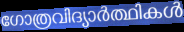
ഗോത്രവിദ്യാർത്ഥികൾ